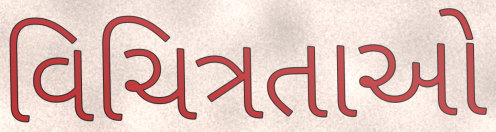
વિચિત્રતાઓ